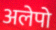
अलेपो